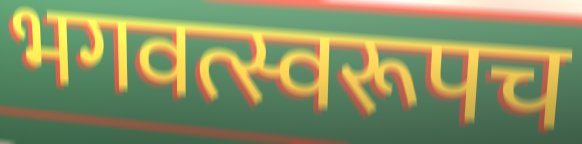
भगवत्स्वरूपच